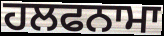
ਹਲਫਨਾਮਾ